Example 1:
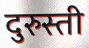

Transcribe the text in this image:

दुरुस्ती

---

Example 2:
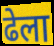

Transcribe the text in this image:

ढेला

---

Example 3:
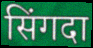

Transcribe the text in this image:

सिंगदा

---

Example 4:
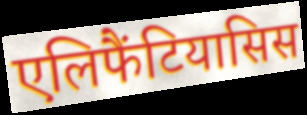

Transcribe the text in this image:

एलिफैंटियासिस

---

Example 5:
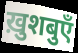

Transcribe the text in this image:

ख़ुशबुएँ